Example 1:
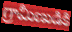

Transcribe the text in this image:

గ్రామీణుడికి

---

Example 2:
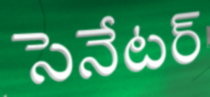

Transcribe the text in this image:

సెనేటర్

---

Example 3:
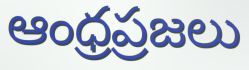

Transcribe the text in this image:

ఆంధ్రప్రజలు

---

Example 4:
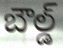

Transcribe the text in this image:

బౌల్డ్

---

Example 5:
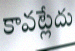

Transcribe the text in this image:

కావట్లేదు